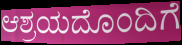
ಆಶ್ರಯದೊಂದಿಗೆ